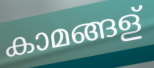
കാമങ്ങള്